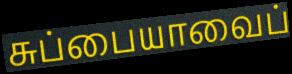
சுப்பையாவைப்